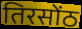
तिरसोंठ